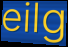
eilg